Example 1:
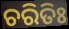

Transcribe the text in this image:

ଚରିତିଃ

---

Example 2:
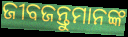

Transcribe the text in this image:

ଜୀବଜନ୍ତୁମାନଙ୍କ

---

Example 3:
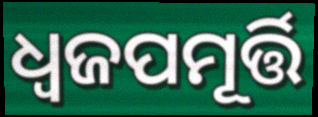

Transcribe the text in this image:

ଧ୍ୱଜପମୂର୍ତ୍ତି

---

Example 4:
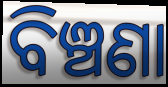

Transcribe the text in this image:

ବିଞ୍ଚଣା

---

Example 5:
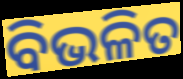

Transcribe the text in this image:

ବିଭଳିତ